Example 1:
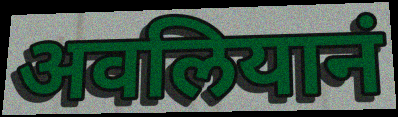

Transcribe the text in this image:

अवलियानं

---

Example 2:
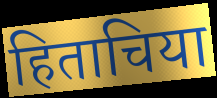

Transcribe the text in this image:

हिताचिया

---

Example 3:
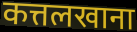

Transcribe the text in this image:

कत्तलखाना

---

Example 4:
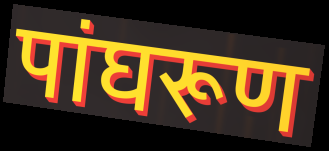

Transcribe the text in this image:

पांघरूण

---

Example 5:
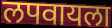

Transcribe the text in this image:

लपवायला